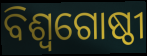
ବିଶ୍ୱଗୋଷ୍ଠୀ